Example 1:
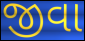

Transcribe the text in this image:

જીવા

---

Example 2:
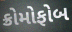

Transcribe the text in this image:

ક્રોમોફોબ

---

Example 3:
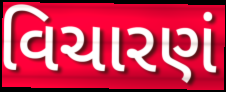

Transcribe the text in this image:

વિચારણં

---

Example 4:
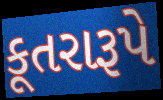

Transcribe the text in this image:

કૂતરારૂપે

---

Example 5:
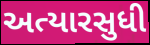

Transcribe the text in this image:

અત્યારસુધી